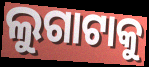
ଲୁଗାଟାକୁ